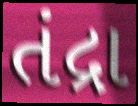
તંદ્રા